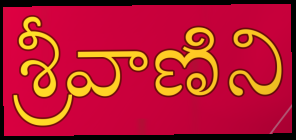
శ్రీవాణిని